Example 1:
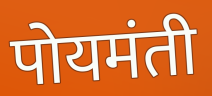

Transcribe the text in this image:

पोयमंती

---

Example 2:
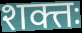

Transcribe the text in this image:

शक्तः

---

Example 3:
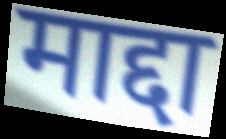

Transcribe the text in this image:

माद्दा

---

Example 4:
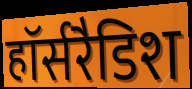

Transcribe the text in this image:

हॉर्सरैडिश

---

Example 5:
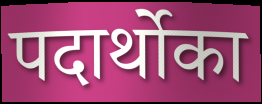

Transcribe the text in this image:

पदार्थोका